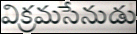
విక్రమసేనుడు